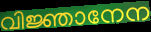
വിജ്ഞാനേന